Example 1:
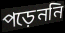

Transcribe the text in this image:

পড়েননি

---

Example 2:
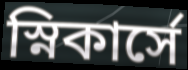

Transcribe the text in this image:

স্নিকার্সে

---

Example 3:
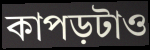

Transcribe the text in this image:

কাপড়টাও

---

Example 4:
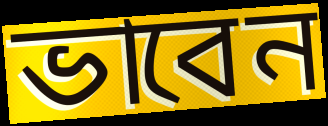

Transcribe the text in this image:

ভাবেন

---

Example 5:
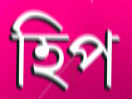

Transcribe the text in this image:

হিপ